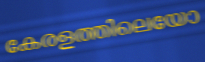
കേരളത്തിലെയോ